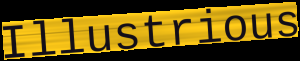
Illustrious